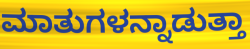
ಮಾತುಗಳನ್ನಾಡುತ್ತಾ